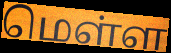
மெள்ள